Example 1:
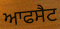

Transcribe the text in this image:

ਆਫਸੈਟ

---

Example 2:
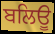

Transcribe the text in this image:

ਬਲਿਊ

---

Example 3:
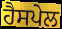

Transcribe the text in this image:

ਹੈਸਪੇਲ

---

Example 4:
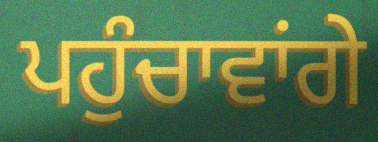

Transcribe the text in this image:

ਪਹੁੰਚਾਵਾਂਗੇ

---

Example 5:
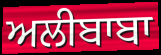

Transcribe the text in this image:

ਅਲੀਬਾਬਾ